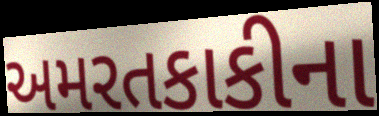
અમરતકાકીના